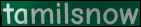
tamilsnow